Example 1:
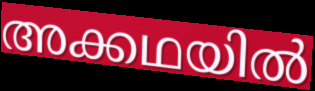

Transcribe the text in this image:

അക്കഥയിൽ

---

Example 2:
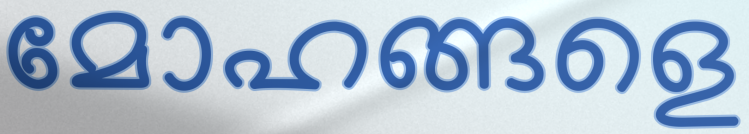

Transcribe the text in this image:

മോഹങ്ങളെ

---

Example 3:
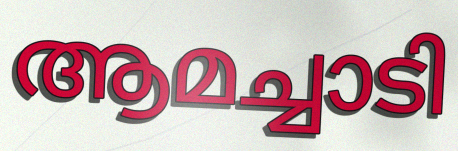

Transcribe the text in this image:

ആമച്ചാടി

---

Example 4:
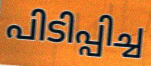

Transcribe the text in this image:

പിടിപ്പിച്ച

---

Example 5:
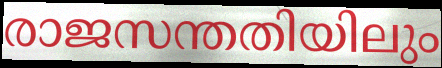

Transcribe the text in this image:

രാജസന്തതിയിലും